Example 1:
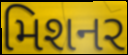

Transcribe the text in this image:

મિશનર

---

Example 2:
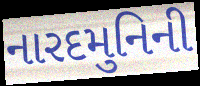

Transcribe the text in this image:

નારદમુનિની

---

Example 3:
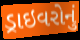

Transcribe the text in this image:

ડ્રાઇવરોનું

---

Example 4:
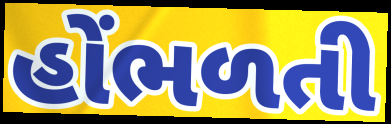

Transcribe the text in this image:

હોંભળતી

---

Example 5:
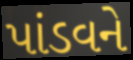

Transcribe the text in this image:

પાંડવને